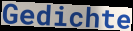
Gedichte